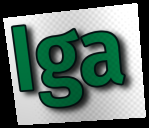
Iga